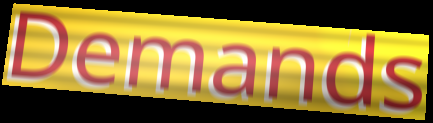
Demands